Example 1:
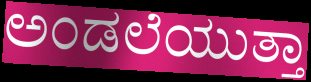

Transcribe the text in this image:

ಅಂಡಲೆಯುತ್ತಾ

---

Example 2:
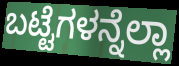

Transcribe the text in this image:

ಬಟ್ಟೆಗಳನ್ನೆಲ್ಲಾ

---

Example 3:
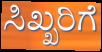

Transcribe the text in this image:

ಸಿಖ್ಖರಿಗೆ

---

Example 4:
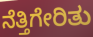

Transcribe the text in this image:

ನೆತ್ತಿಗೇರಿತು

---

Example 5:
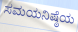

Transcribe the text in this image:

ಸಮಯನಿಷ್ಠೆಯ